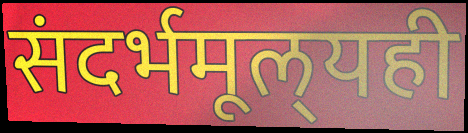
संदर्भमूल्यही